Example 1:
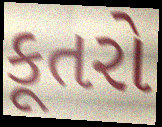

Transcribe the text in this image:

કૂતરો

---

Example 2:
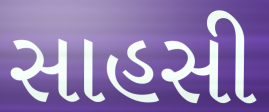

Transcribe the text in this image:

સાહસી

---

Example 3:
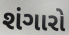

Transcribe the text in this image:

શંગારો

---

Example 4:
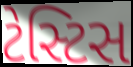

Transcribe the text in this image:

ટેસ્ટિસ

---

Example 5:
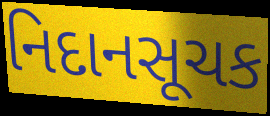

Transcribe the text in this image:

નિદાનસૂચક